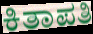
ಕಿತಾಪತಿ